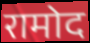
रामोद